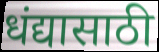
धंद्यासाठी